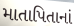
માતાપિતાનાં